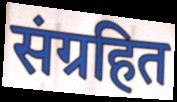
संग्रहित